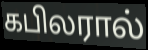
கபிலரால்